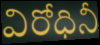
విరోధినీ